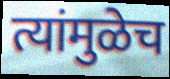
त्यांमुळेच